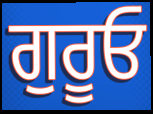
ਗੁਰੂਓ